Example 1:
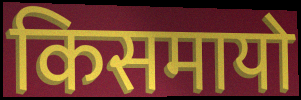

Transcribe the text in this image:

किसमायो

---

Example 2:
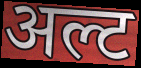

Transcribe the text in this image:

अल्ट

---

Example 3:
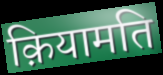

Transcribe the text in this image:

क़ियामति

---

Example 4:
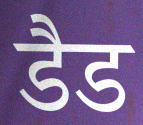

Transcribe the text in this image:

डैड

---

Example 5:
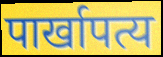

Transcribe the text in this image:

पार्खापत्य